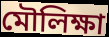
মৌলিক্ষা